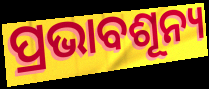
ପ୍ରଭାବଶୂନ୍ୟ